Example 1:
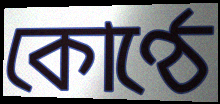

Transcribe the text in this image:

কোণ্ঠে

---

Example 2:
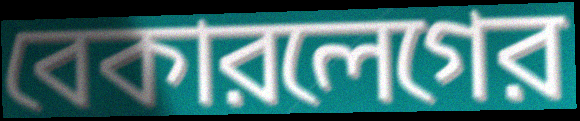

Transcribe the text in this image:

বেকারলেগের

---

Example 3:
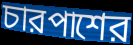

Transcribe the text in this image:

চারপাশের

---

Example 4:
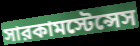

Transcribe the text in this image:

সারকামস্টেন্সেস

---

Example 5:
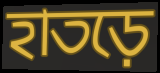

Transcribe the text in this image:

হাতড়ে